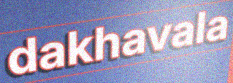
dakhavala